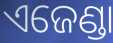
ଏଜେଣ୍ଡା